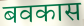
बवकास